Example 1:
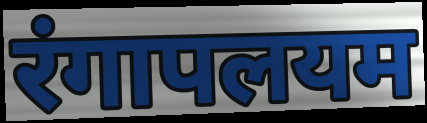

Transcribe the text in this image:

रंगापलयम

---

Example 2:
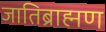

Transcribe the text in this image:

जातिब्राह्मण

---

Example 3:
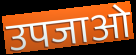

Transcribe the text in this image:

उपजाओ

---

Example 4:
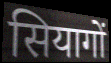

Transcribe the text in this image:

सियागों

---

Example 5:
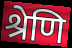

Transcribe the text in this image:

श्रेणि